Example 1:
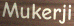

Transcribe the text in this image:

Mukerji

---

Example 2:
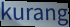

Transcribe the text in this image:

kurang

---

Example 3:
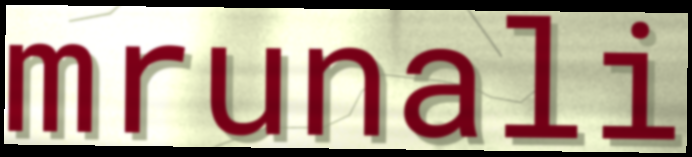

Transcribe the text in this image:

mrunali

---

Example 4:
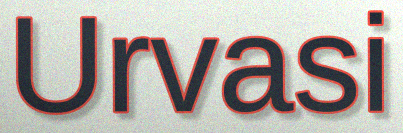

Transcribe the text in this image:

Urvasi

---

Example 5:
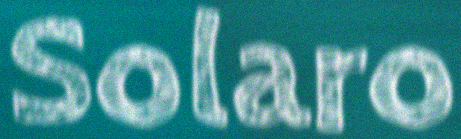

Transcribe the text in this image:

Solaro